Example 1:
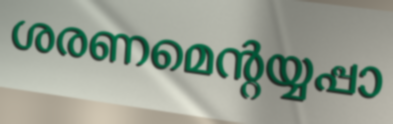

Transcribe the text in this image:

ശരണമെന്റയ്യപ്പാ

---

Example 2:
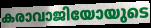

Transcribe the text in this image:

കരാവാജിയോയുടെ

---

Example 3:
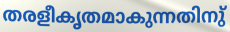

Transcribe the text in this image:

തരളീകൃതമാകുന്നതിനു്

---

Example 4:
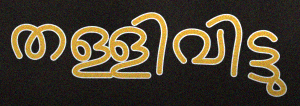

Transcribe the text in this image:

തള്ളിവിട്ടു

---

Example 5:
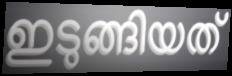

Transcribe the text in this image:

ഇടുങ്ങിയത്